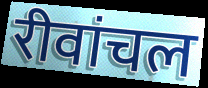
रीवांचल